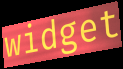
widget